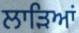
ਲਾੜਿਆਂ